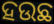
ହଉଛ